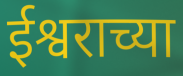
ईश्वराच्या